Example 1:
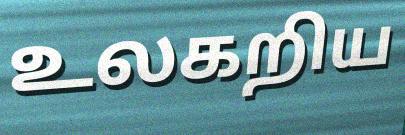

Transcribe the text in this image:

உலகறிய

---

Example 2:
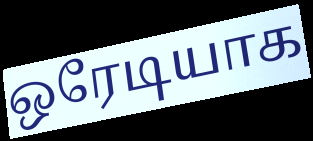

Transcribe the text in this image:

ஒரேடியாக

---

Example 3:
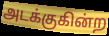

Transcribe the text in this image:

அடக்குகின்ற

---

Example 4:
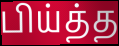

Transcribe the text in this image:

பிய்த்த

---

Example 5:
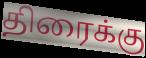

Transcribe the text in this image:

திரைக்கு